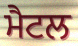
ਮੈਟਲ